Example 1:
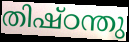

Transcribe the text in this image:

തിഷ്ഠന്തു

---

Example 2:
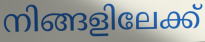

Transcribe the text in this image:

നിങ്ങളിലേക്ക്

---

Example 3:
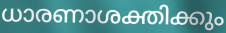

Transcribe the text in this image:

ധാരണാശക്തിക്കും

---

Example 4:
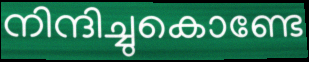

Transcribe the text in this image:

നിന്ദിച്ചുകൊണ്ടേ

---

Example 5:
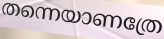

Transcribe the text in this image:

തന്നെയാണത്രേ